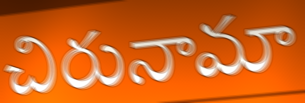
చిరునామా